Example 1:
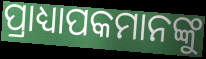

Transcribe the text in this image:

ପ୍ରାଧ୍ୟାପକମାନଙ୍କୁ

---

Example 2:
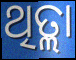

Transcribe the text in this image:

ଥିତ୍ଲା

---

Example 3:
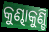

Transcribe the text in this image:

କୁଣ୍ଢାକୁଣ୍ଡି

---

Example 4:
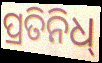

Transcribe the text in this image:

ପ୍ରତିନିଧ୍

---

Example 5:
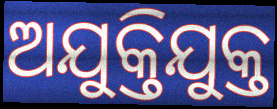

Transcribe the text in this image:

ଅଯୁକ୍ତିଯୁକ୍ତ